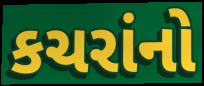
કચરાંનો